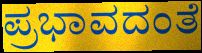
ಪ್ರಭಾವದಂತೆ